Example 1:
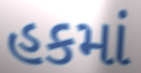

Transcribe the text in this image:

હકમાં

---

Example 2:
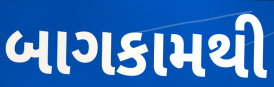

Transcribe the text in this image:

બાગકામથી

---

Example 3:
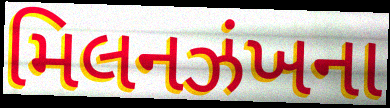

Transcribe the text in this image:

મિલનઝંખના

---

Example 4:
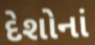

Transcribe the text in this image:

દેશોનાં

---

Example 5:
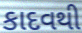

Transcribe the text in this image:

કાદવથી